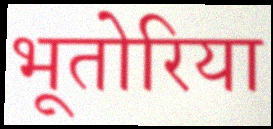
भूतोरिया